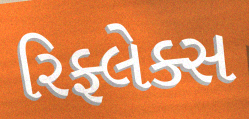
રિફ્લેક્સ